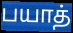
பயாத்